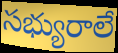
సభ్యురాలే